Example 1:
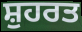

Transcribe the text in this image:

ਸ਼ੁਹਰਤ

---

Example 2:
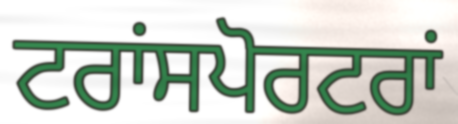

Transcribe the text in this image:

ਟਰਾਂਸਪੋਰਟਰਾਂ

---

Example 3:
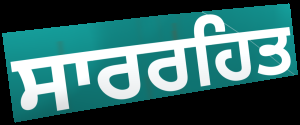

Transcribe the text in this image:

ਸਾਰਰਹਿਤ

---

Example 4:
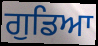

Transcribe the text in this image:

ਗੁਡਿਆ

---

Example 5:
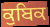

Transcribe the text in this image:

ਕੁਬਿਕ